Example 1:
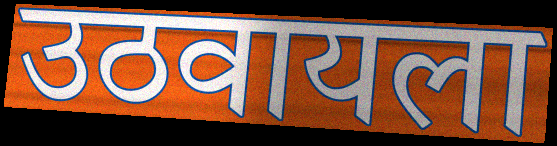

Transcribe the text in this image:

उठवायला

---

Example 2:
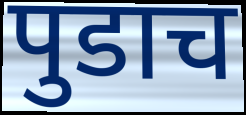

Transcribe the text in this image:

पुडाच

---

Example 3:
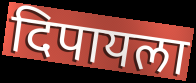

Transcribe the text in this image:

दिपायला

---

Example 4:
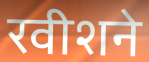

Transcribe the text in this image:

रवीशने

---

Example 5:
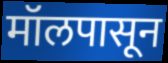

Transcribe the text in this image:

मॉलपासून